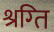
श्रग्ति